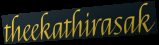
theekathirasak